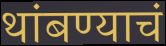
थांबण्याचं